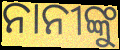
ନାନୀଙ୍କୁ